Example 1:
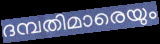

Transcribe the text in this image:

ദമ്പതിമാരെയും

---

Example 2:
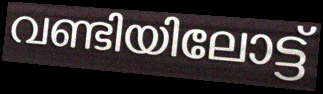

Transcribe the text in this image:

വണ്ടിയിലോട്ട്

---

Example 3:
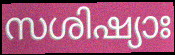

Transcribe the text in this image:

സശിഷ്യാഃ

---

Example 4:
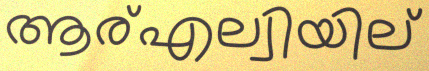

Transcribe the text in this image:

ആര്എല്വിയില്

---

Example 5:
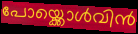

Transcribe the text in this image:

പോയ്ക്കൊൾവിൻ